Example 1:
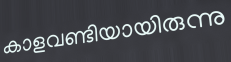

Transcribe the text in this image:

കാളവണ്ടിയായിരുന്നു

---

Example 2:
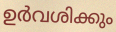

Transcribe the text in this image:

ഉർവശിക്കും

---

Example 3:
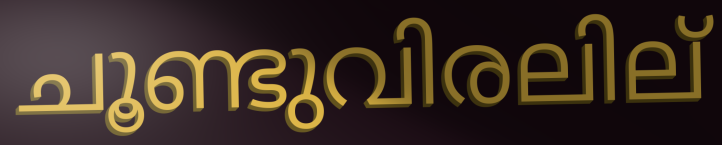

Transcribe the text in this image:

ചൂണ്ടുവിരലില്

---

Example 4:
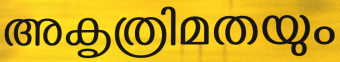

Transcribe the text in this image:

അകൃത്രിമതയും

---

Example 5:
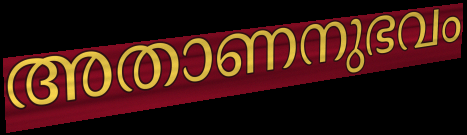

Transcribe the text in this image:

അതാണനുഭവം